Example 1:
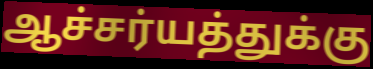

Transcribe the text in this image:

ஆச்சர்யத்துக்கு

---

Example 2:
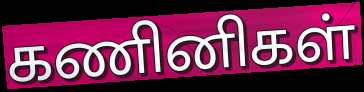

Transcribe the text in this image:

கணினிகள்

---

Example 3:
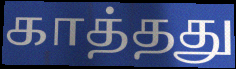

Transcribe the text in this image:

காத்தது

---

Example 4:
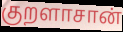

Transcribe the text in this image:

குறளாசான்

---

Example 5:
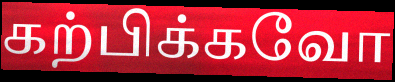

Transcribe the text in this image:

கற்பிக்கவோ